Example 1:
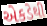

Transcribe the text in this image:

એકડેથી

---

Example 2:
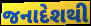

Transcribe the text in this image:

જનાદેશથી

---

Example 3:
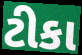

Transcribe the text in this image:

ટીકા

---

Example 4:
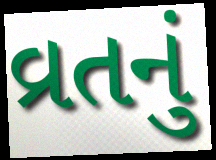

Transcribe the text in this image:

વ્રતનું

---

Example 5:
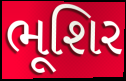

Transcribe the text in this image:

ભૂશિર